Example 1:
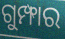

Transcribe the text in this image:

ଗୁମ୍ଫାର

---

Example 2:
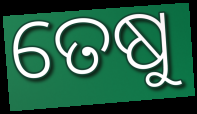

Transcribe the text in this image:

ତେଷୁ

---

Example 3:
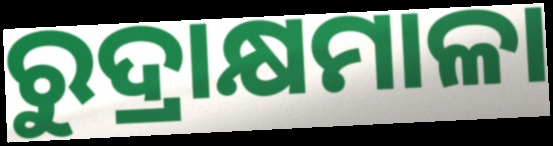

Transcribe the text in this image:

ରୁଦ୍ରାକ୍ଷମାଳା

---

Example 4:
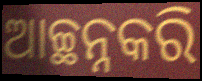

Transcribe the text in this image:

ଆଚ୍ଛନ୍ନକରି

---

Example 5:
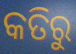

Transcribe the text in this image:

କତିରୁ